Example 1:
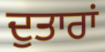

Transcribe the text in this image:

ਦੁਤਾਰਾਂ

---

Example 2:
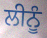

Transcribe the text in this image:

ਲੀਨੂੰ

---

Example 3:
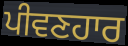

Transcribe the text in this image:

ਪੀਵਣਹਾਰ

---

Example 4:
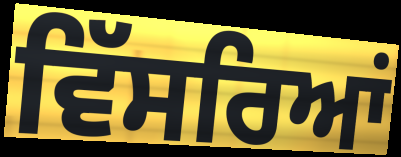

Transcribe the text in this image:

ਵਿੱਸਰਿਆਂ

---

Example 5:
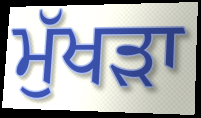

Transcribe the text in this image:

ਮੁੱਖੜਾ